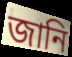
জানি